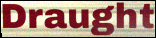
Draught